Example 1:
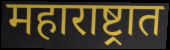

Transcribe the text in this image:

महाराष्ट्रात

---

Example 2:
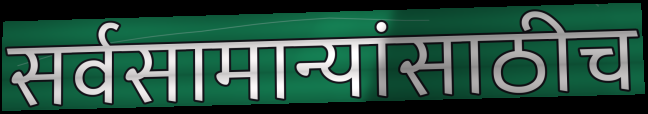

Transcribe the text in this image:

सर्वसामान्यांसाठीच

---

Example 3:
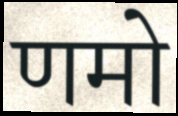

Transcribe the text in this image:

णमो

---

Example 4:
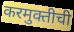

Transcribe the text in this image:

करमुक्तीची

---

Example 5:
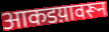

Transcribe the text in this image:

आकडय़ावरून